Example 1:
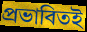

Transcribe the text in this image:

প্রভাবিতই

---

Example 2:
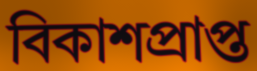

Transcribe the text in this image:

বিকাশপ্রাপ্ত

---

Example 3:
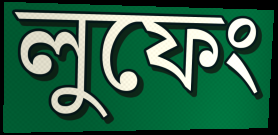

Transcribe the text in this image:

লুফেং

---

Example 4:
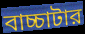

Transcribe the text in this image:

বাচ্চাটার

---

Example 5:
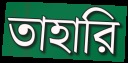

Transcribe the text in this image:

তাহারি